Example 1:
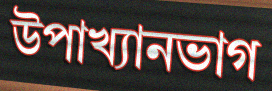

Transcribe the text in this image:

উপাখ্যানভাগ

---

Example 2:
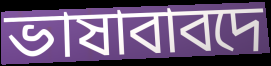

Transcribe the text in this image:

ভাষাবাবদে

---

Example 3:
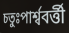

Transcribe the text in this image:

চতুঃপার্শ্ববর্ত্তী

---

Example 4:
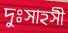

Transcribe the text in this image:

দুঃসাহসী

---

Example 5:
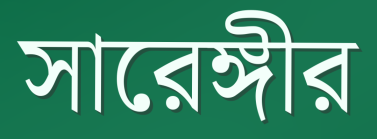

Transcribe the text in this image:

সারেঙ্গীর